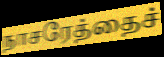
நாசரேத்தைச்